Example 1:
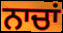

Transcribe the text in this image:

ਨਾਚਾਂ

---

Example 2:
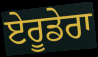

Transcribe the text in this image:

ਏਰੂਡੇਰਾ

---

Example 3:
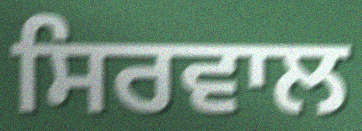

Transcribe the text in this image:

ਸਿਰਵਾਲ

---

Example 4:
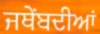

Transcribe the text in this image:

ਜਥੇਂਬਦੀਆਂ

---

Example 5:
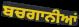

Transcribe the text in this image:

ਬਚਗਾਨੀਆਂ